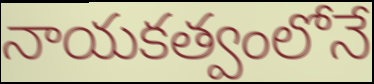
నాయకత్వంలోనే